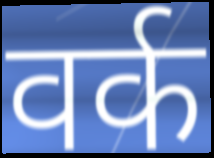
वर्क